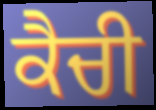
ਕੈਚੀ